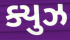
ક્યુઝ